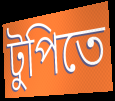
টুপিতে